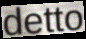
detto